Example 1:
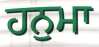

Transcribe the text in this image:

ਹਨੁਮਾ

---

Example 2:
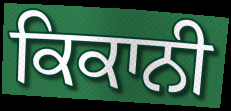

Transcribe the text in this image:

ਕਿਕਾਨੀ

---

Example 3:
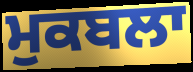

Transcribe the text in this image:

ਮੁਕਬਲਾ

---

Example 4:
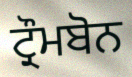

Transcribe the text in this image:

ਟ੍ਰੌਮਬੋਨ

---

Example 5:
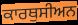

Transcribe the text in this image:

ਕਾਰਥੁਸੀਅਨ